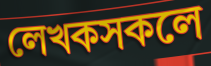
লেখকসকলে